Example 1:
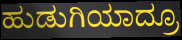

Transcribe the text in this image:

ಹುಡುಗಿಯಾದ್ರೂ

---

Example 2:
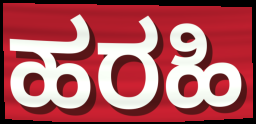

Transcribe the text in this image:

ಹರಹಿ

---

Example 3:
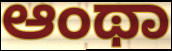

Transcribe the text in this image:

ಆಂಥಾ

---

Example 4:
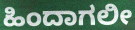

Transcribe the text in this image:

ಹಿಂದಾಗಲೀ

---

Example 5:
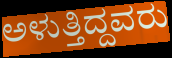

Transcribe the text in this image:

ಅಳುತ್ತಿದ್ದವರು